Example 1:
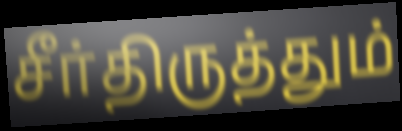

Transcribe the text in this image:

சீர்திருத்தும்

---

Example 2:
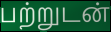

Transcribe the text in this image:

பற்றுடன்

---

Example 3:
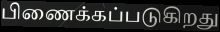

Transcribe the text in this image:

பிணைக்கப்படுகிறது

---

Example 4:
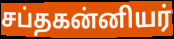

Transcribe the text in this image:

சப்தகன்னியர்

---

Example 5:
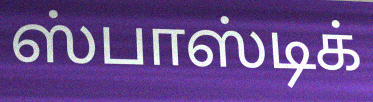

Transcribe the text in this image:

ஸ்பாஸ்டிக்